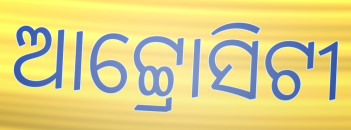
ଆଟ୍ଟ୍ରୋସିଟୀ